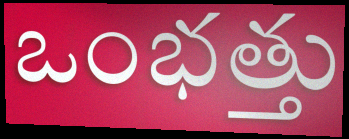
ఒంభత్తు